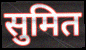
सुमित